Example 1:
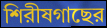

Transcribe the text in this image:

শিরীষগাছের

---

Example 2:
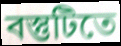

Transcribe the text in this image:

বস্তুটিতে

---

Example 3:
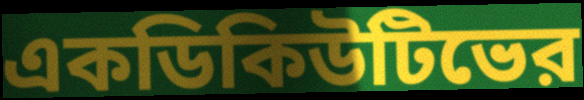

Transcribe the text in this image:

একডিকিউটিভের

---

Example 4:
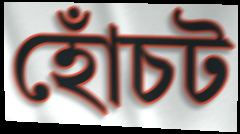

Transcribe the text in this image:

হোঁচট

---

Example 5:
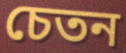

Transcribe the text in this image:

চেতন